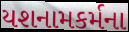
યશનામકર્મના